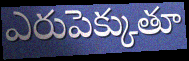
ఎరుపెక్కుతూ